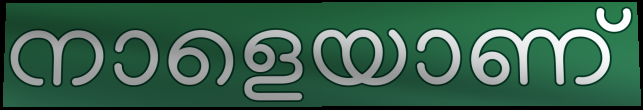
നാളെയാണ്